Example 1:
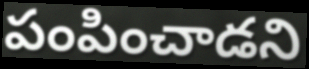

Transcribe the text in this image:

పంపించాడని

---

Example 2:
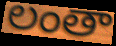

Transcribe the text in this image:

లంతా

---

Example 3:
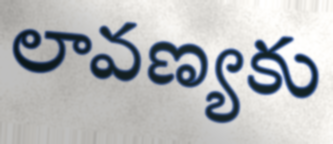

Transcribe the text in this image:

లావణ్యకు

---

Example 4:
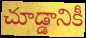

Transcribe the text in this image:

చూడ్డానికీ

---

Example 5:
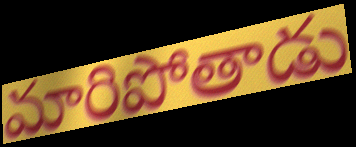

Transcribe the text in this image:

మారిపోతాడు